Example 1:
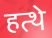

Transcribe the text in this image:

हत्थे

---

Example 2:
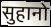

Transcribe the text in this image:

सुहानो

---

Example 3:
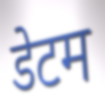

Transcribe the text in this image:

डेटम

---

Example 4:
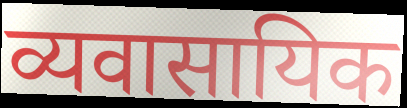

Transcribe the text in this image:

व्यवासायिक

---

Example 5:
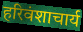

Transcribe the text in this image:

हरिवंशाचार्य